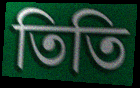
তিতি